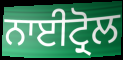
ਨਾਈਟ੍ਰੋਲ